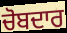
ਚੋਬਦਾਰ